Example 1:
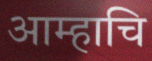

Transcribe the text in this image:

आम्हाचि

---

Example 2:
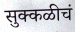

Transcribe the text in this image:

सुक्कळीचं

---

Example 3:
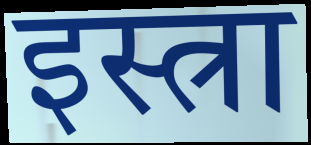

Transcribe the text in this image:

इस्त्रा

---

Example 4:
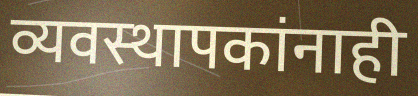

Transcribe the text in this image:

व्यवस्थापकांनाही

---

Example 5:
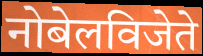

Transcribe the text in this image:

नोबेलविजेते